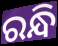
ରନ୍ଧି